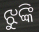
ଝୁଙ୍କି